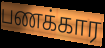
பணக்கார